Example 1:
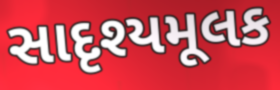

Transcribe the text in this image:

સાદૃશ્યમૂલક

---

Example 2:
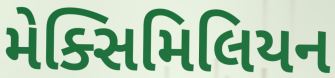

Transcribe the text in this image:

મેક્સિમિલિયન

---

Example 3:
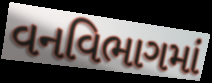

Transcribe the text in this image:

વનવિભાગમાં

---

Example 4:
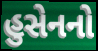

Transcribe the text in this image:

હુસેનનો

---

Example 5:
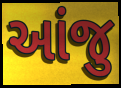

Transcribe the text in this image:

આંજુ